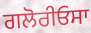
ਗਲੋਰੀਓਸਾ